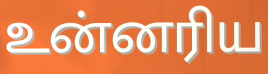
உன்னரிய